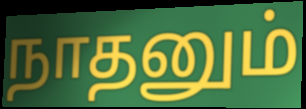
நாதனும்